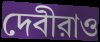
দেবীরাও